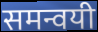
समन्वयी